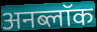
अनब्लॉक